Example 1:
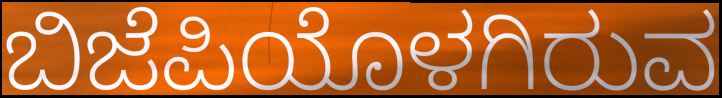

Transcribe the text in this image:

ಬಿಜೆಪಿಯೊಳಗಿರುವ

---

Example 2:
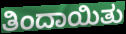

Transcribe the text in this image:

ತಿಂದಾಯಿತು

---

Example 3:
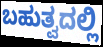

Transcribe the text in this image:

ಬಹುತ್ವದಲ್ಲಿ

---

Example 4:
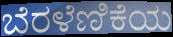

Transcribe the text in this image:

ಬೆರಳೆಣಿಕೆಯ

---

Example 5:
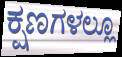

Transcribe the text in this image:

ಕ್ಷಣಗಳಲ್ಲೂ